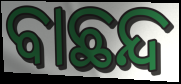
ବାଛନ୍ଦ